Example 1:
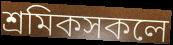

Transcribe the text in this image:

শ্ৰমিকসকলে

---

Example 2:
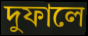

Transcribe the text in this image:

দুফালে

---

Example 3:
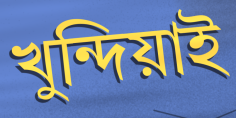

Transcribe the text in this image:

খুন্দিয়াই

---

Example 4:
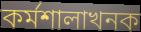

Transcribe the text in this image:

কৰ্মশালাখনক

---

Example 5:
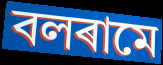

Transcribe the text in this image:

বলৰামে